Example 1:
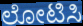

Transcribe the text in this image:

ಲೋಟಿಸಿ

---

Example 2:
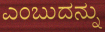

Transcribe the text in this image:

ಎಂಬುದನ್ನು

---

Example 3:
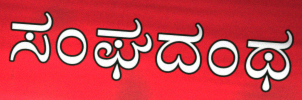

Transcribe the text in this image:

ಸಂಘದಂಥ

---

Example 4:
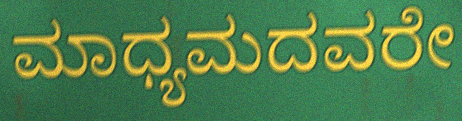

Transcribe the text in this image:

ಮಾಧ್ಯಮದವರೇ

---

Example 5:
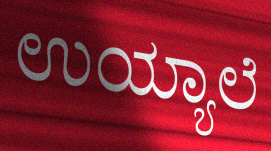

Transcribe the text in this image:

ಉಯ್ಯಾಲೆ